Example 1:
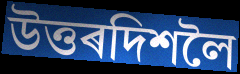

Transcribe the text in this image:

উত্তৰদিশলৈ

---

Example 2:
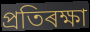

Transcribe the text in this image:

প্ৰতিৰক্ষা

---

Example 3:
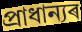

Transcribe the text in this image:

প্ৰাধান্যৰ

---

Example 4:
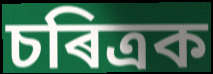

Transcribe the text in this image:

চৰিত্ৰক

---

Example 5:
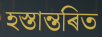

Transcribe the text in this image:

হস্তান্তৰিত